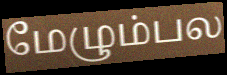
மேழும்பல